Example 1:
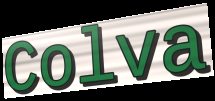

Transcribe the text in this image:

Colva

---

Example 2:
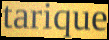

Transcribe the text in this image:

tarique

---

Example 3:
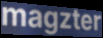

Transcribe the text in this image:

magzter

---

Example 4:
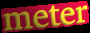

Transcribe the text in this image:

meter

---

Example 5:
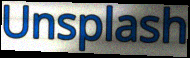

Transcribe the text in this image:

Unsplash